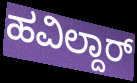
ಹವಿಲ್ದಾರ್